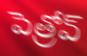
పెత్రోవ్